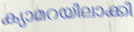
ക്യാമറയിലാക്കി